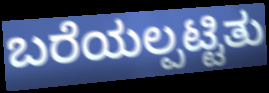
ಬರೆಯಲ್ಪಟ್ಟಿತು